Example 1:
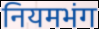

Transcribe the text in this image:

नियमभंग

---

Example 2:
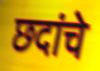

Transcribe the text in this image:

छदांचे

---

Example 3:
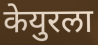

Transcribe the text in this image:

केयुरला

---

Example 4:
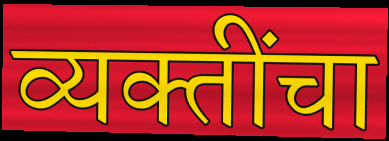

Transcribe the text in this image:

व्यक्‍तींचा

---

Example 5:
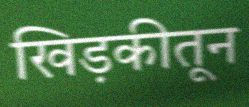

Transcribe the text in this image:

खिड़कीतून